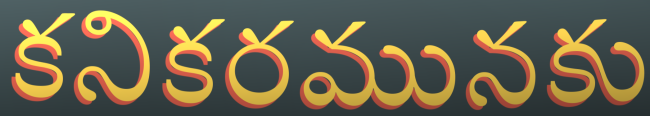
కనికరమునకు